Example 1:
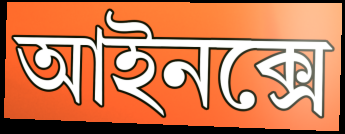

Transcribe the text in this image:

আইনক্সে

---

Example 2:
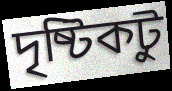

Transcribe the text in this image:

দৃষ্টিকটু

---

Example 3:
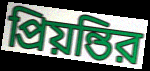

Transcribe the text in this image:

প্রিয়ন্তির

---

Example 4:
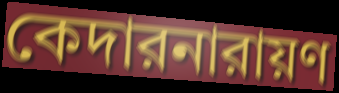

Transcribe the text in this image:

কেদারনারায়ণ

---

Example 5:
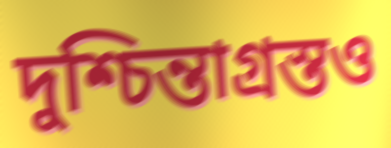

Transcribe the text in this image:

দুশ্চিন্তাগ্রস্তও